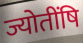
ज्योतींषि